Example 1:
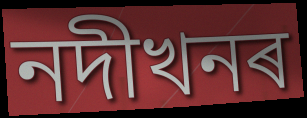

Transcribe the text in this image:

নদীখনৰ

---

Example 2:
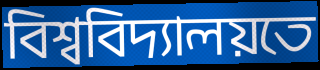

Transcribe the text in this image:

বিশ্ববিদ্যালয়তে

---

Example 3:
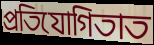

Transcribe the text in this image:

প্ৰতিযোগিতাত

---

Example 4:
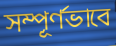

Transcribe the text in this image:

সম্পূৰ্ণভাবে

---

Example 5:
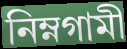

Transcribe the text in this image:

নিম্নগামী